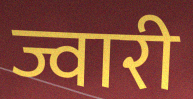
ज्वारी